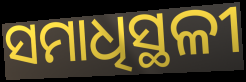
ସମାଧିସ୍ଥଳୀ